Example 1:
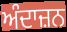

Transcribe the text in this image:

ਅੰਦਾਜ਼ਨ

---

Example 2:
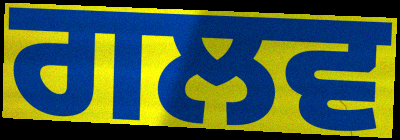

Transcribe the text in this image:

ਗਲਵ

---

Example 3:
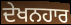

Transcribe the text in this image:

ਦੇਖਨਹਾਰ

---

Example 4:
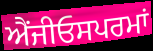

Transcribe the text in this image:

ਐਂਜੀਓਸਪਰਮਾਂ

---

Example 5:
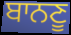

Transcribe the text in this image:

ਬਾਨਣੂ